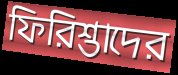
ফিরিশ্তাদের